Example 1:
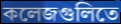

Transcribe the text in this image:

কলেজগুলিতে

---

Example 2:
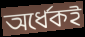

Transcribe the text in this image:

অর্ধেকই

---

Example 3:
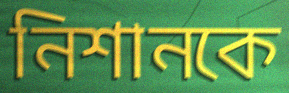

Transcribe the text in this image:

নিশানকে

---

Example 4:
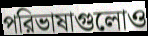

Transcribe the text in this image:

পরিভাষাগুলোও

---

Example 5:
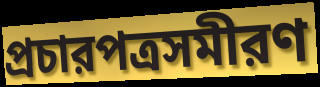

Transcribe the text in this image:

প্রচারপত্রসমীরণ